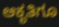
ಆಕೃತಿಗೂ